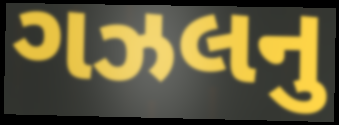
ગઝલનુ